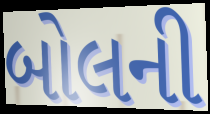
બોલની